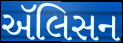
ઍલિસન